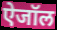
ऐजॉल